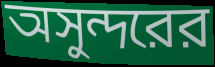
অসুন্দরের